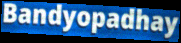
Bandyopadhay